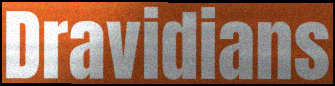
Dravidians